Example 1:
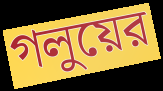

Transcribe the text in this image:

গলুয়ের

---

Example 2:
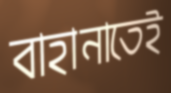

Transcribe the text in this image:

বাহানাতেই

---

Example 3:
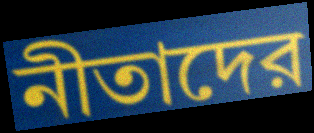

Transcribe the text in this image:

নীতাদের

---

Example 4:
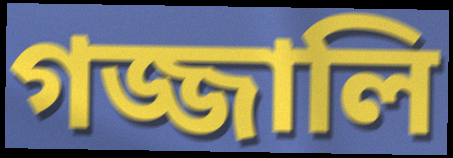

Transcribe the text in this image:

গজ্জালি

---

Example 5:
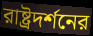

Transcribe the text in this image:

রাষ্ট্রদর্শনের